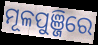
ମୂଳପୁଞ୍ଜିରେ